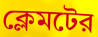
ক্লেমটের